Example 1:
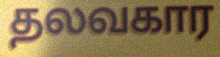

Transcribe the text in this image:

தலவகார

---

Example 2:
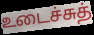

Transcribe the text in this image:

உடைச்சுத்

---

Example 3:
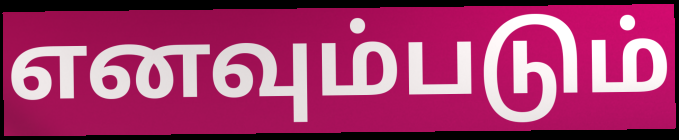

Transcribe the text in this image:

எனவும்படும்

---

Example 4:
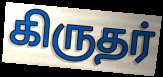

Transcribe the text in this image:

கிருதர்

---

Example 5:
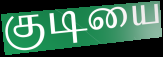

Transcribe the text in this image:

குடியை